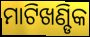
ମାଟିଖଣ୍ଡିକ